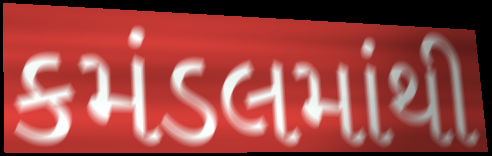
કમંડલમાંથી